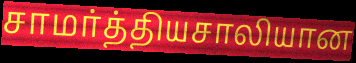
சாமர்த்தியசாலியான